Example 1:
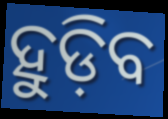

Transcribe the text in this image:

ହୁଡ଼ିବ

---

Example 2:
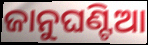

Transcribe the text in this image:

ଜାନୁଘଣ୍ଟିଆ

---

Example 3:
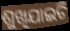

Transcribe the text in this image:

ଶୁଖିଯାଇଚି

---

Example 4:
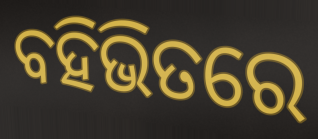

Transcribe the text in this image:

ବହିଭିତରେ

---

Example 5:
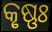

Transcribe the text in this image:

କୃଷ୍ଣଃ